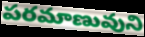
పరమాణువుని